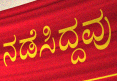
ನಡೆಸಿದ್ದವು